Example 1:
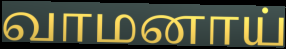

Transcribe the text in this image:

வாமனாய்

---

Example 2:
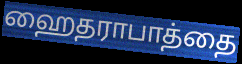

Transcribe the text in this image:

ஹைதராபாத்தை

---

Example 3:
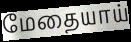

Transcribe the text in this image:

மேதையாய்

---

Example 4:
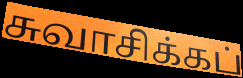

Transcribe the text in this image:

சுவாசிக்கப்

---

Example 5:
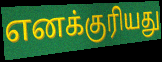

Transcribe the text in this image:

எனக்குரியது